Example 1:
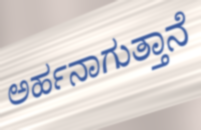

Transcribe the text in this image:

ಅರ್ಹನಾಗುತ್ತಾನೆ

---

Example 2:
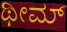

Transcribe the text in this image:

ಥೀಮ್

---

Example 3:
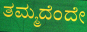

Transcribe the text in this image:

ತಮ್ಮದೆಂದೇ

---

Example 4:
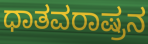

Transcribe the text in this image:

ಧಾತವರಾಷ್ರನ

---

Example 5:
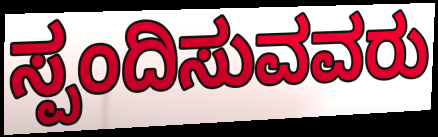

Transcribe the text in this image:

ಸ್ಪಂದಿಸುವವರು